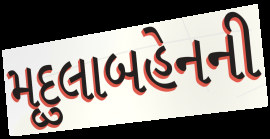
મૃદુલાબહેનની